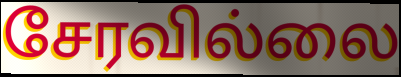
சேரவில்லை